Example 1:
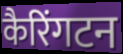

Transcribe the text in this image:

कैरिंगटन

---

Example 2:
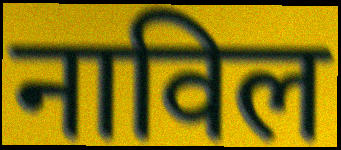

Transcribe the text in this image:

नाविल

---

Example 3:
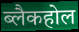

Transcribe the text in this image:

ब्लैकहोल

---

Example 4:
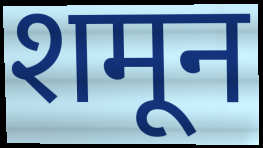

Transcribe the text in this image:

शमून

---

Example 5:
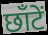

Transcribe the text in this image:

छाँटें